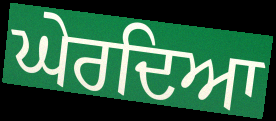
ਘੇਰਦਿਆ